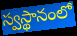
స్వస్థానంలో